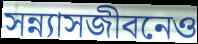
সন্ন্যাসজীবনেও